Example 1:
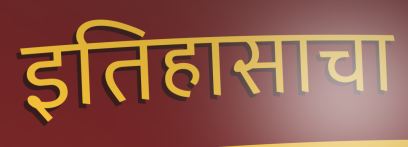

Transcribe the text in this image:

इतिहासाचा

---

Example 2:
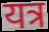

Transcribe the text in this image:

यत्र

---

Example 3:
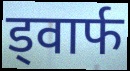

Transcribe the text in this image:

ड्वार्फ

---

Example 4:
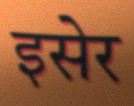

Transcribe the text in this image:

इसेर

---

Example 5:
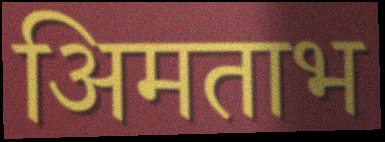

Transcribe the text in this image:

अिमताभ